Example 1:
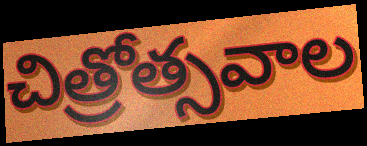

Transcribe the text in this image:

చిత్రోత్సవాల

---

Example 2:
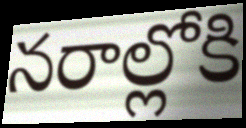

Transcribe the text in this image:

నరాల్లోకి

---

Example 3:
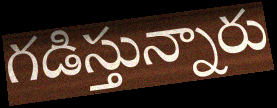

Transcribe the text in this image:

గడిస్తున్నారు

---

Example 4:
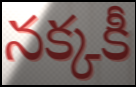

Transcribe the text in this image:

నక్కకీ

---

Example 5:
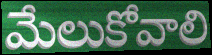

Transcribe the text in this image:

మేలుకోవాలి